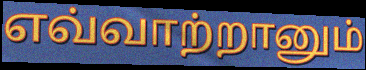
எவ்வாற்றானும்